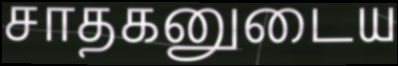
சாதகனுடைய